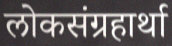
लोकसंग्रहार्था